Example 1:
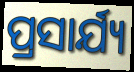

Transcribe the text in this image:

ପ୍ରସାର୍ଯ୍ୟ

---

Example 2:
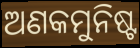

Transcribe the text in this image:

ଅଣକମୁନିଷ୍ଟ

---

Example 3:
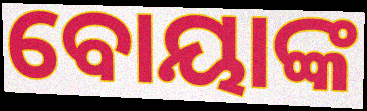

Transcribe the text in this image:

ବୋୟାଙ୍କ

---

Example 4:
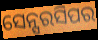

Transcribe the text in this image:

ସେନ୍ସରସିପର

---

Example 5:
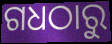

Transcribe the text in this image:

ଗଧଠାରୁ